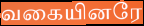
வகையினரே